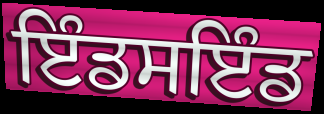
ਇੰਡਸਇੰਡ